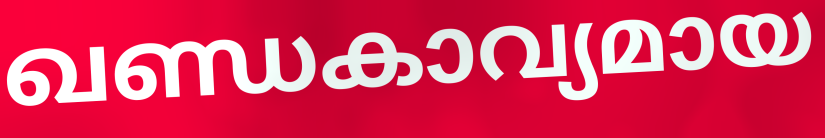
ഖണ്ഡകാവ്യമായ